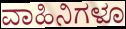
ವಾಹಿನಿಗಳೂ